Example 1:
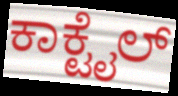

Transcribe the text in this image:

ಕಾಕ್ಟೈಲ್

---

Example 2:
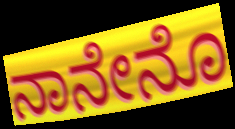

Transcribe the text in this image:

ನಾನೇನೊ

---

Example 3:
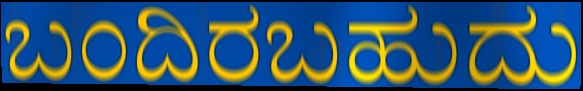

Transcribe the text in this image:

ಬಂದಿರಬಹುದು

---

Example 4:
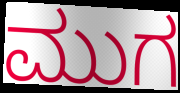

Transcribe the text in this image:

ಮುಗ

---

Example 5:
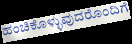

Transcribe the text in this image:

ಹಂಚಿಕೊಳ್ಳುವುದರೊಂದಿಗೆ